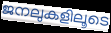
ജനലുകളിലൂടെ